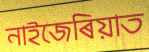
নাইজেৰিয়াত